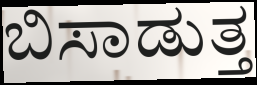
ಬಿಸಾಡುತ್ತ